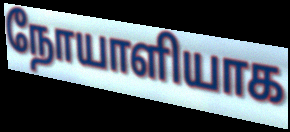
நோயாளியாக